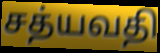
சத்யவதி